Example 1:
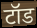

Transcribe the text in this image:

टॉड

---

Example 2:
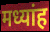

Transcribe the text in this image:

मध्यांह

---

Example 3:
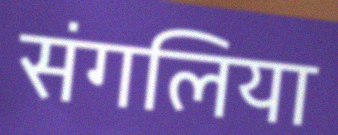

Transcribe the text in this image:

संगलिया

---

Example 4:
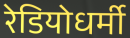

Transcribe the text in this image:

रेडियोधर्मी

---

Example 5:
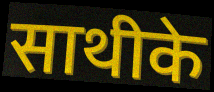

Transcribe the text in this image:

साथीके